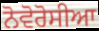
ਨੋਵੋਰੋਸੀਆ